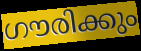
ഗൗരിക്കും